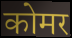
कोमर